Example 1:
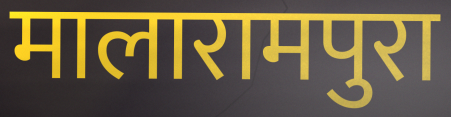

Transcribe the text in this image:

मालारामपुरा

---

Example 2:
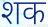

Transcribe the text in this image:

शक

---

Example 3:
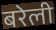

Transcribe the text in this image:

बरेली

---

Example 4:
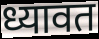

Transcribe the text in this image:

ध्यावत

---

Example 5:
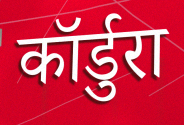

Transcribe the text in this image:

कॉर्डुरा